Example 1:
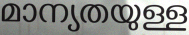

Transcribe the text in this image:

മാന്യതയുള്ള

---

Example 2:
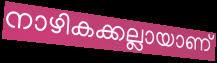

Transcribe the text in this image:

നാഴികക്കല്ലായാണ്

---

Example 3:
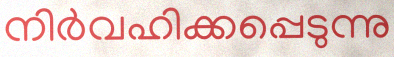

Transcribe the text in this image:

നിർവഹിക്കപ്പെടുന്നു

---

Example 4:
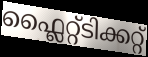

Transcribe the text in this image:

ഫ്ലൈറ്റ്ടിക്കറ്റ്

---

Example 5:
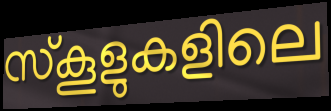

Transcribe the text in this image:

സ്കൂളുകളിലെ